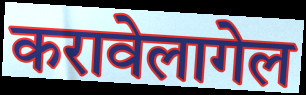
करावेलागेल